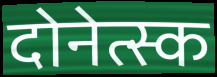
दोनेत्स्क